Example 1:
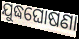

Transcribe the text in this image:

ଯୁଦ୍ଧଘୋଷଣା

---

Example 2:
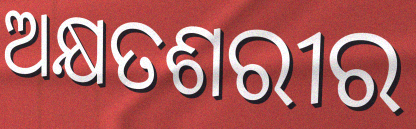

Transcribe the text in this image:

ଅକ୍ଷତଶରୀର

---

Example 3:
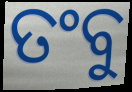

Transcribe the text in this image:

ତଂବୁ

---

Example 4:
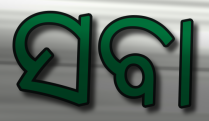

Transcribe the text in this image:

ସବା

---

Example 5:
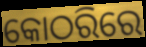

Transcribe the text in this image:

କୋଠରିରେ